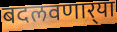
बदलवणार्‍या